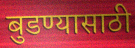
बुडण्यासाठी